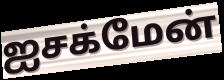
ஐசக்மேன்